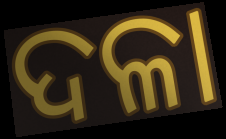
ଦଳା